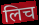
लिच